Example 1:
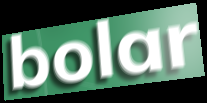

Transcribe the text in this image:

bolar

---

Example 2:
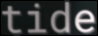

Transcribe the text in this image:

tide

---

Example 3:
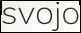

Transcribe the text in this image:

svojo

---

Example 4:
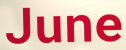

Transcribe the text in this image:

June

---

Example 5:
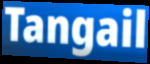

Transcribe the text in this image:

Tangail